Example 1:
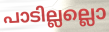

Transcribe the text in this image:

പാടില്ലല്ലൊ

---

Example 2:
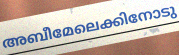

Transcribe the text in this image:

അബീമേലെക്കിനോടു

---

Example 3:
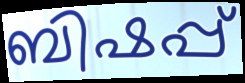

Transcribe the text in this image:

ബിഷപ്പ്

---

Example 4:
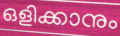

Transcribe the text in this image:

ഒളിക്കാനും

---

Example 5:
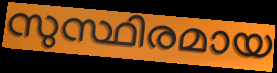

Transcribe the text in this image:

സുസ്ഥിരമായ